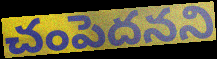
చంపెదనని